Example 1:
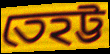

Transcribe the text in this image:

তেহট্ট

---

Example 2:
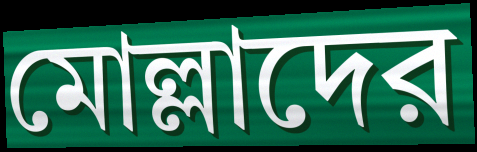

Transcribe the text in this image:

মোল্লাদের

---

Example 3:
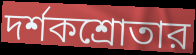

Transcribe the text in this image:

দর্শকশ্রোতার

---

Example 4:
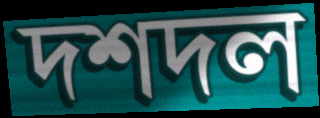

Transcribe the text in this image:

দশদল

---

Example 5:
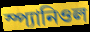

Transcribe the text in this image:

স্প্যানিওল